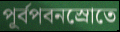
পূর্বপবনস্রোতে